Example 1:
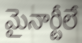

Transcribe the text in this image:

మైనార్టీలే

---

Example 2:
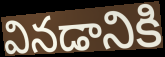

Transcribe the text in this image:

వినడానికి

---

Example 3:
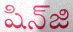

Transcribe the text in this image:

షిన్‌జి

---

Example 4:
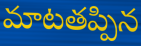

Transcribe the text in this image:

మాటతప్పిన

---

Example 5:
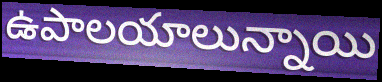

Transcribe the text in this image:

ఉపాలయాలున్నాయి